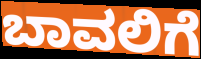
ಬಾವಲಿಗೆ